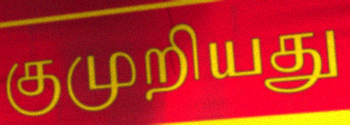
குமுறியது